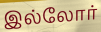
இல்லோர்